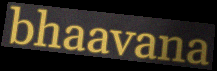
bhaavana